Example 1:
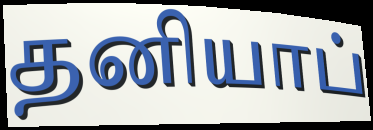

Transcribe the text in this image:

தனியாப்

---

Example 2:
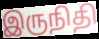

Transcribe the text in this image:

இருநிதி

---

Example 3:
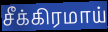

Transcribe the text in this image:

சீக்கிரமாய்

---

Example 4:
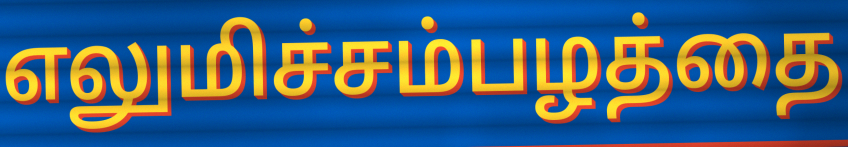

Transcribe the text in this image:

எலுமிச்சம்பழத்தை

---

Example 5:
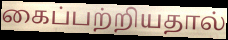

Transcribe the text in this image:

கைப்பற்றியதால்